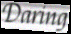
Daring